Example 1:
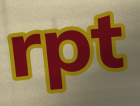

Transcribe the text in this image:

rpt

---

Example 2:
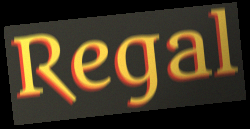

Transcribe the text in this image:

Regal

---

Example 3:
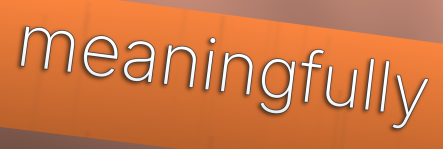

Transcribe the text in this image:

meaningfully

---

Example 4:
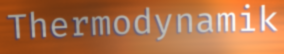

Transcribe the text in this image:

Thermodynamik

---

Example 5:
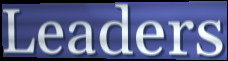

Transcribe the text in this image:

Leaders